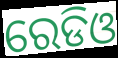
ରେଡିଓ